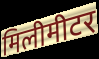
मिलीमीटर